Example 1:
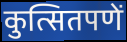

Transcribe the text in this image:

कुत्सितपणें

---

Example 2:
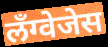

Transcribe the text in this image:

लँग्वेजेस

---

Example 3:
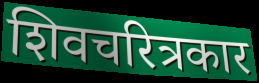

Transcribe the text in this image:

शिवचरित्रकार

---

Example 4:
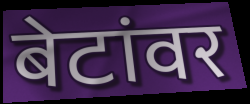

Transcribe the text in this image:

बेटांवर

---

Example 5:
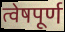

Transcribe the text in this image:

त्वेषपूर्ण